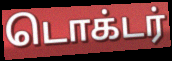
டொக்டர்